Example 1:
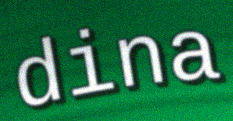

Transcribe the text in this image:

dina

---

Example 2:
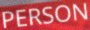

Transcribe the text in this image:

PERSON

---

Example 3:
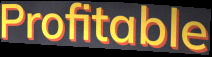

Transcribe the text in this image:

Profitable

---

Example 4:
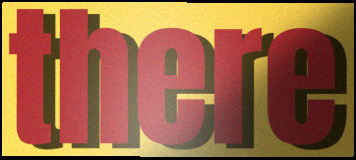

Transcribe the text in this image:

there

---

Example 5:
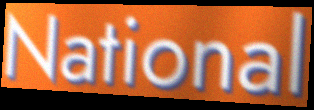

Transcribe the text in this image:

National